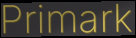
Primark